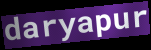
daryapur